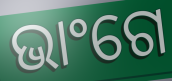
ଭାଂଗେ